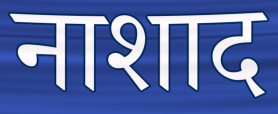
नाशाद